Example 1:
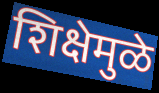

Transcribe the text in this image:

शिक्षेमुळे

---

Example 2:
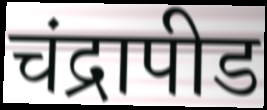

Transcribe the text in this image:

चंद्रापीड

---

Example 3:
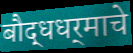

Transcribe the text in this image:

बौद्धधर्माचे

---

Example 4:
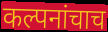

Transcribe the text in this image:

कल्पनांचाच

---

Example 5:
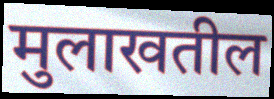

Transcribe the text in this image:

मुलाखतील